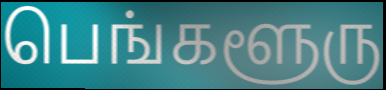
பெங்களூரு